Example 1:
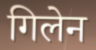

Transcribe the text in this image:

गिलेन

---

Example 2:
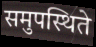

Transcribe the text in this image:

समुपस्थिते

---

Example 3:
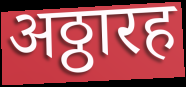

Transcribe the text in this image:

अठ्ठारह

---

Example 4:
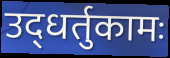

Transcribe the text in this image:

उद्धर्तुकामः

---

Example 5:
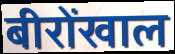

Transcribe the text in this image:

बीरोंखाल